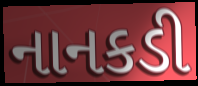
નાનકડી